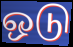
ஒடு